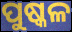
ପୁଷ୍କଳ